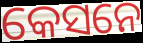
କେସନେ